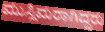
ಮುಸ್ಲಿಮರಾಗಿದ್ದರು